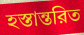
হস্তান্তরিত